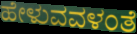
ಹೇಳುವವಳಂತೆ